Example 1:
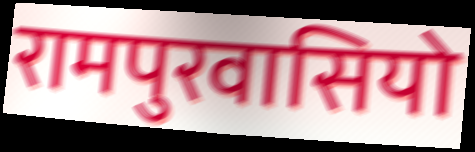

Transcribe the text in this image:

रामपुरवासियो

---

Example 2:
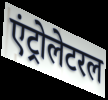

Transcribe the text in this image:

एंट्रोलेटरल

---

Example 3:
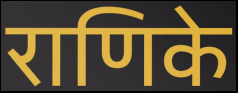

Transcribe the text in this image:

राणिके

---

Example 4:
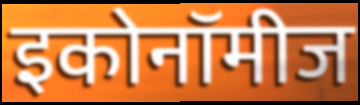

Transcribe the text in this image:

इकोनॉमीज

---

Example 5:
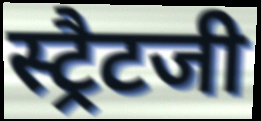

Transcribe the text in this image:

स्ट्रैटजी